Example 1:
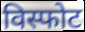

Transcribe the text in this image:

विस्फोट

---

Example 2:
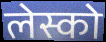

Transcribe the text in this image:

लेस्को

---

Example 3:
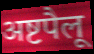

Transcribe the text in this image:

अष्टपैलू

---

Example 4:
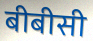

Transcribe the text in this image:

बीबीसी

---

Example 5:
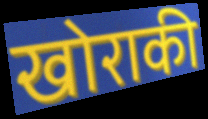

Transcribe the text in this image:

खोराकी